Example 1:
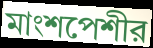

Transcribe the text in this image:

মাংশপেশীর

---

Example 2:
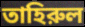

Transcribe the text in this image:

তাহিরুল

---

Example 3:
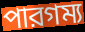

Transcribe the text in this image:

পারগম্য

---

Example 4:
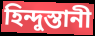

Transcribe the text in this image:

হিন্দুস্তানী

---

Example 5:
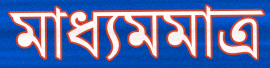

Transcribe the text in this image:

মাধ্যমমাত্র